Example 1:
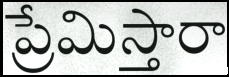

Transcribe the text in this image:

ప్రేమిస్తారా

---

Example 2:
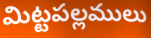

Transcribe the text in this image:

మిట్టపల్లములు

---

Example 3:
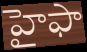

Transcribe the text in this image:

హైఫా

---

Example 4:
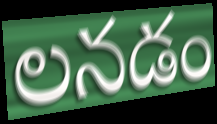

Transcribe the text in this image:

లనడం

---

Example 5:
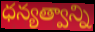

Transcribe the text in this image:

ధన్యత్వాన్ని